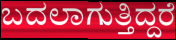
ಬದಲಾಗುತ್ತಿದ್ದರೆ